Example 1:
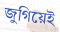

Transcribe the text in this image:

জুগিয়েই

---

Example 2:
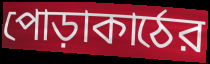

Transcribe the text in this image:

পোড়াকাঠের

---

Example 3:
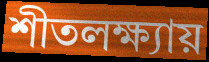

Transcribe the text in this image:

শীতলক্ষ্যায়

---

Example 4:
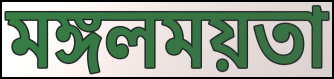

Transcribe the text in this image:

মঙ্গলময়তা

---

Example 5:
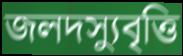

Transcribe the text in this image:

জলদস্যুবৃত্তি